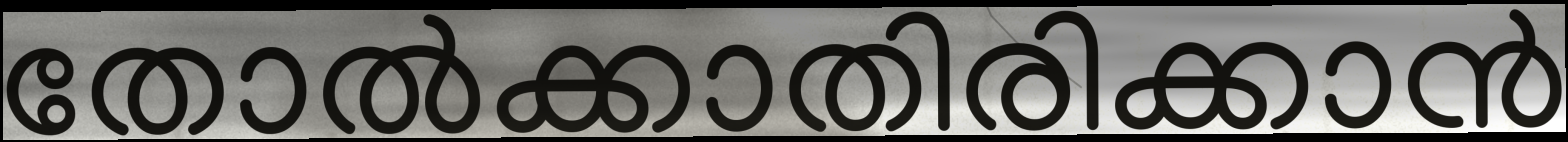
തോൽക്കാതിരിക്കാൻ